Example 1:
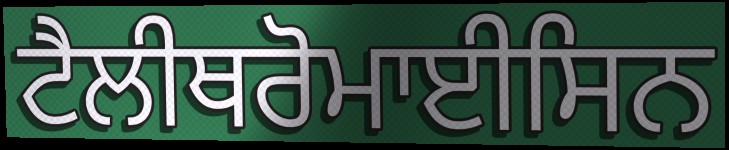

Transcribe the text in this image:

ਟੈਲੀਥਰੋਮਾਈਸਿਨ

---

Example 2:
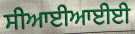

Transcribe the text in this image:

ਸੀਆਈਆਈਈ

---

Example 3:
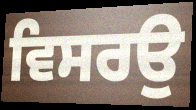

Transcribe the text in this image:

ਵਿਸਰਉ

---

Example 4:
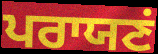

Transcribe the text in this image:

ਪਰਾਯਣਂ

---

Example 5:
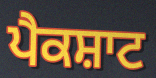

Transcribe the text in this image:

ਪੈਕਸ਼ਾਟ